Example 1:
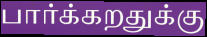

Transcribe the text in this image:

பார்க்கறதுக்கு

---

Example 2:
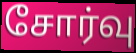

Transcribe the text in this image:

சோர்வு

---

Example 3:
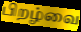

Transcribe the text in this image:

பிறழ்வை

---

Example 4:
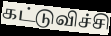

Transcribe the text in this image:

கட்டுவிச்சி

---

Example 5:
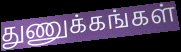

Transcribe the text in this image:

துணுக்கங்கள்